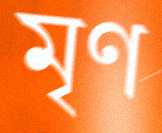
মৃণ